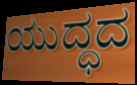
ಯುದ್ಧದ